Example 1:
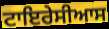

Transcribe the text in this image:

ਟਾਇਰੇਸੀਆਸ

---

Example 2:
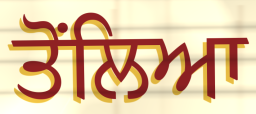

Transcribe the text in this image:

ਤੋਂਲਿਆ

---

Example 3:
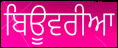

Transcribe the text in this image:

ਬਿਊਵਰੀਆ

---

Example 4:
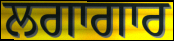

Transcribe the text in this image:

ਲਗਾਗਾਰ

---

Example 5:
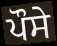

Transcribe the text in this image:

ਪੌਸੇ